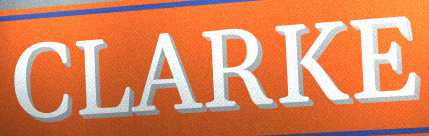
CLARKE